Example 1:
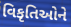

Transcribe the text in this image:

વિકૃતિઓને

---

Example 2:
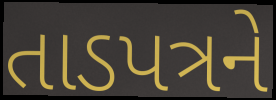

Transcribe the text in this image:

તાડપત્રને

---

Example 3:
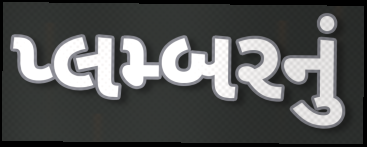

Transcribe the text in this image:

પ્લમ્બરનું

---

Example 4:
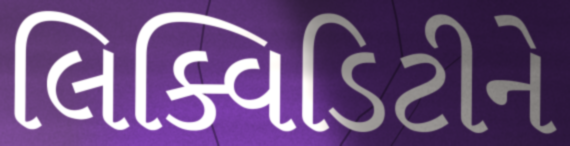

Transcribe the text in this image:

લિક્વિડિટીને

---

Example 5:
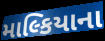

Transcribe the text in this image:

માલ્કિયાના